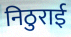
निठुराई